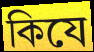
কিযে